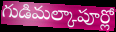
గుడిమల్కాపూర్లో